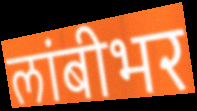
लांबीभर